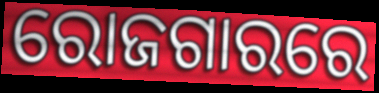
ରୋଜଗାରରେ